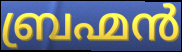
ബ്രഹ്മൻ